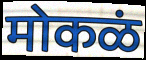
मोकळं